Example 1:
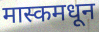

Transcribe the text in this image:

मास्कमधून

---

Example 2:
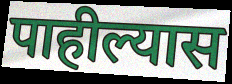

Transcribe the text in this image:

पाहील्यास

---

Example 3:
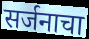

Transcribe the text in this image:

सर्जनाचा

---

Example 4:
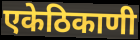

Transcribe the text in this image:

एकेठिकाणी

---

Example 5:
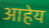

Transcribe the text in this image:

आहेय